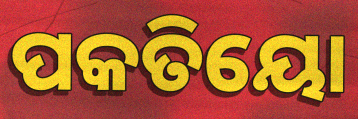
ପକତିୟୋ